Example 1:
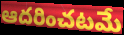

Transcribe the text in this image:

ఆదరించటమే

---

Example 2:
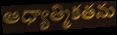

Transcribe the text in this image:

ఆధ్యాత్మికతను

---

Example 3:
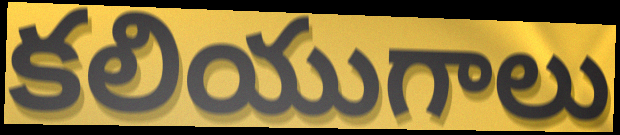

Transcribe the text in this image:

కలియుగాలు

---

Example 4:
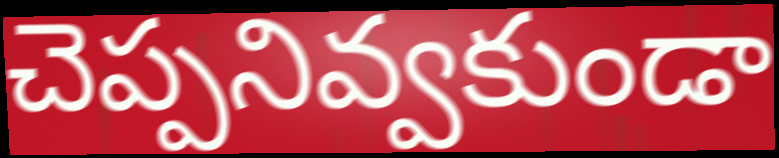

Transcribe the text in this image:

చెప్పనివ్వకుండా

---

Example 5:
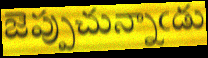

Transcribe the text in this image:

జెప్పుచున్నాఁడు